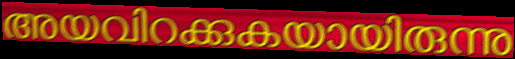
അയവിറക്കുകയായിരുന്നു